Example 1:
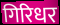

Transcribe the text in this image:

गिरिधर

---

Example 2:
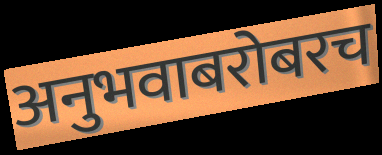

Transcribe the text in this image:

अनुभवाबरोबरच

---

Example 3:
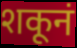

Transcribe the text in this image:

शकूनं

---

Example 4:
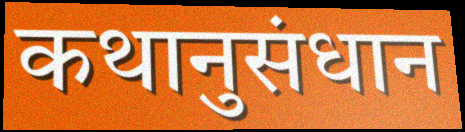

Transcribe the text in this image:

कथानुसंधान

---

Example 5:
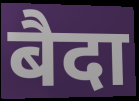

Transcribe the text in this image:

बैदा